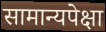
सामान्यपेक्षा